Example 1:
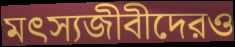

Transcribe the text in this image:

মৎস্যজীবীদেরও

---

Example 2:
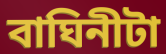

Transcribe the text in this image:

বাঘিনীটা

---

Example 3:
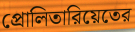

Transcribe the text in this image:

প্রোলিতারিয়েতের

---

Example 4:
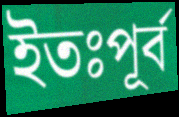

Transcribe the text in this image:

ইতঃপূর্ব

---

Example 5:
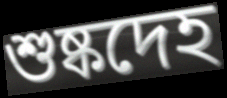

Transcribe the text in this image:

শুষ্কদেহ